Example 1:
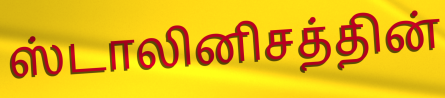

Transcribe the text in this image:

ஸ்டாலினிசத்தின்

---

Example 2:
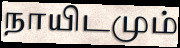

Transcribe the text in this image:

நாயிடமும்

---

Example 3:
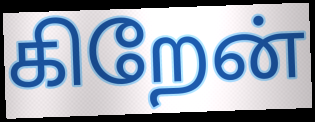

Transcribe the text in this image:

கிறேன்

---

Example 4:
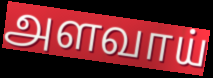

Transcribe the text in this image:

அளவாய்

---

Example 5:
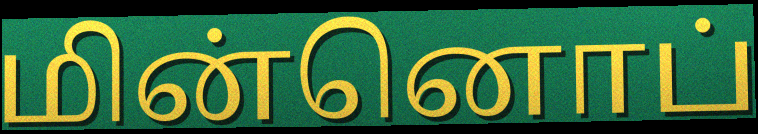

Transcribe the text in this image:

மின்னொப்